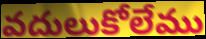
వదులుకోలేము